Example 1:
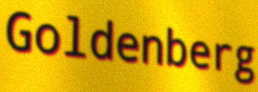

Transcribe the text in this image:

Goldenberg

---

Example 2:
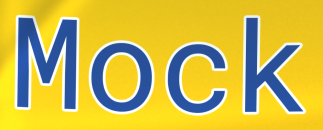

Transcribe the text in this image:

Mock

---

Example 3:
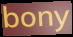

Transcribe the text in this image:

bony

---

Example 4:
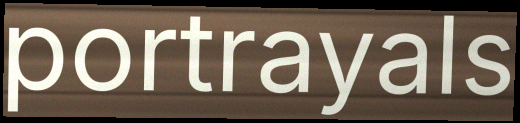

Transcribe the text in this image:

portrayals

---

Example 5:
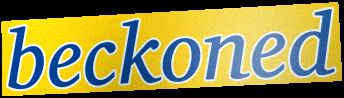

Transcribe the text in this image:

beckoned